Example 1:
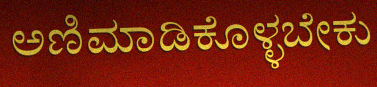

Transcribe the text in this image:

ಅಣಿಮಾಡಿಕೊಳ್ಳಬೇಕು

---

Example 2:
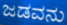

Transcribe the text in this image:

ಜಡವನು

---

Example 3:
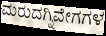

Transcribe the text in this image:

ಮರುದಗ್ನಿವೇಗಗಳ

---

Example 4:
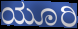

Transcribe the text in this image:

ಯೂರಿ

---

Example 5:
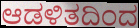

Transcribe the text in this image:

ಆಡಳಿತದಿಂದ